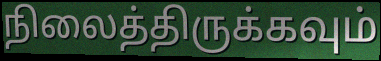
நிலைத்திருக்கவும்